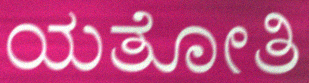
ಯತೋತಿ